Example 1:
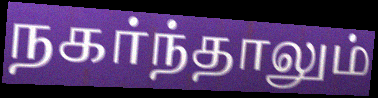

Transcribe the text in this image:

நகர்ந்தாலும்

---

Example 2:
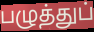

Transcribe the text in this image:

பழுத்துப்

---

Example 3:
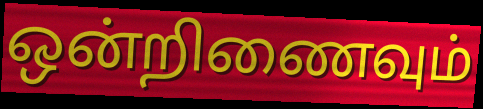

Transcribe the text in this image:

ஒன்றிணைவும்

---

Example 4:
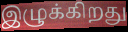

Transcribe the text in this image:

இழுக்கிறது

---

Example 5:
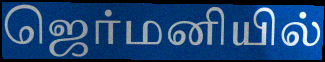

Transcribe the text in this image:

ஜெர்மனியில்